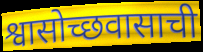
श्वासोच्छवासाची